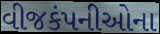
વીજકંપનીઓના